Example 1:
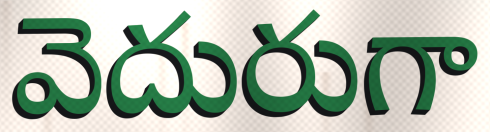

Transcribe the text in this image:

వెదురుగా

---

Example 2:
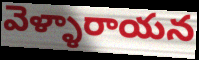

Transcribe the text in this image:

వెళ్ళారాయన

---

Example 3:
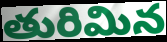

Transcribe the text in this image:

తురిమిన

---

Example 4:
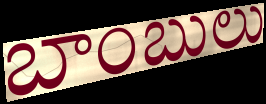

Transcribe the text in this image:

బాంబులు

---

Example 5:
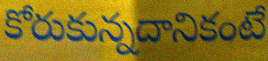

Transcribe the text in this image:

కోరుకున్నదానికంటే